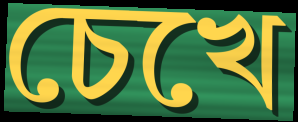
চেখে